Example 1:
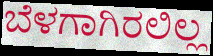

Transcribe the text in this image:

ಬೆಳಗಾಗಿರಲಿಲ್ಲ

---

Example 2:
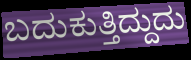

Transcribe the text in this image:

ಬದುಕುತ್ತಿದ್ದುದು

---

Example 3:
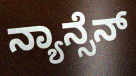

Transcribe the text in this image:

ನ್ಯಾನ್ಸೆನ್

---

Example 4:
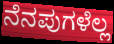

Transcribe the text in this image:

ನೆನಪುಗಳೆಲ್ಲ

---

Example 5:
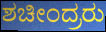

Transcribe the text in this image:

ಶಚೀಂದ್ರರು